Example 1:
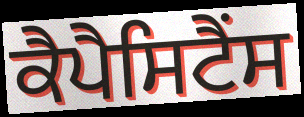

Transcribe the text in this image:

ਕੈਪੈਸਿਟੈਂਸ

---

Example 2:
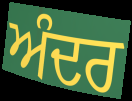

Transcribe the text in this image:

ਅੰਦਰ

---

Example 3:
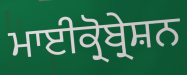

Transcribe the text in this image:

ਮਾਈਕ੍ਰੋਬ੍ਰੇਸ਼ਨ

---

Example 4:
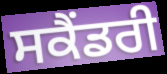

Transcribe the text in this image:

ਸਕੈੰਡਰੀ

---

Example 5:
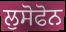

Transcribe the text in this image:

ਲੁਸੋਫੋਨ